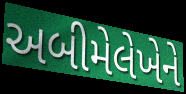
અબીમેલેખેને